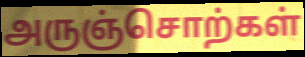
அருஞ்சொற்கள்